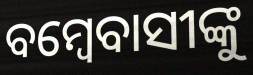
ବମ୍ବେବାସୀଙ୍କୁ